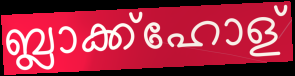
ബ്ലാക്ക്ഹോള്